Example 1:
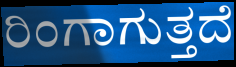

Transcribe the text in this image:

ರಿಂಗಾಗುತ್ತದೆ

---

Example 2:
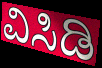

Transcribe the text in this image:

ವಿಸಿಡಿ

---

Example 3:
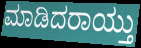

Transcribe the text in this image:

ಮಾಡಿದರಾಯ್ತು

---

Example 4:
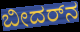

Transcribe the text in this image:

ಬೀದರ್‌ನ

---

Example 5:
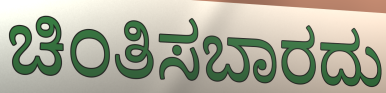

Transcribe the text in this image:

ಚಿಂತಿಸಬಾರದು